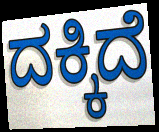
ದಕ್ಕಿದೆ